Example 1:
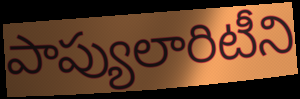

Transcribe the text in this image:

పాప్యులారిటీని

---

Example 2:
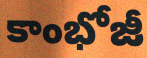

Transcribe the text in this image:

కాంభోజీ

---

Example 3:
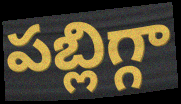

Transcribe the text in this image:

పబ్లిగ్గా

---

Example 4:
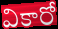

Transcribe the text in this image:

వికారో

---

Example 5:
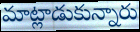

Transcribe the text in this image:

మాట్లాడుకున్నారు